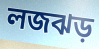
লজঝড়